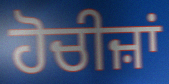
ਹੋਚੀਜ਼ਾਂ